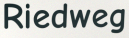
Riedweg